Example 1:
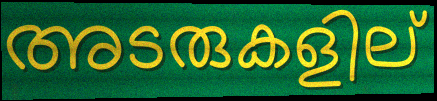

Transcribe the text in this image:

അടരുകളില്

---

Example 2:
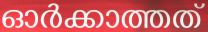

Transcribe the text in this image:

ഓർക്കാത്തത്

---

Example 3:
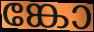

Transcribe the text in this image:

ങ്കോ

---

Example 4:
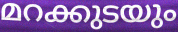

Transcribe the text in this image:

മറക്കുടയും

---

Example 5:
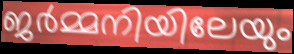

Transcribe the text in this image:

ജർമ്മനിയിലേയും